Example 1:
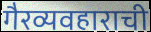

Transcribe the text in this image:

गैरव्यवहाराची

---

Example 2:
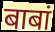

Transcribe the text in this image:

बाबां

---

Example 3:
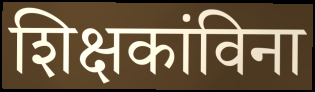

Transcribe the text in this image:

शिक्षकांविना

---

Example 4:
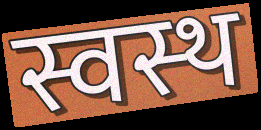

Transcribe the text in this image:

स्वस्थ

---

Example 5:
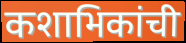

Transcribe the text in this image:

कशाभिकांची